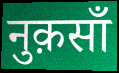
नुक़साँ